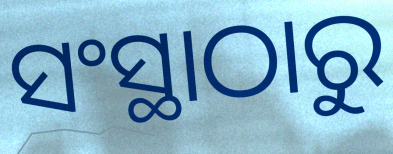
ସଂସ୍ଥାଠାରୁ